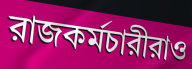
রাজকর্মচারীরাও